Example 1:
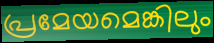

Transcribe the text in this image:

പ്രമേയമെങ്കിലും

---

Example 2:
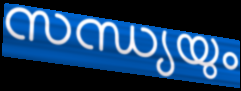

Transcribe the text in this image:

സന്ധ്യയും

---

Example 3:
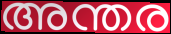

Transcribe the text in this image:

അന്തര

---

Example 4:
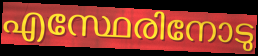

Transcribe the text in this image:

എസ്ഥേരിനോടു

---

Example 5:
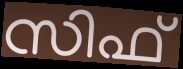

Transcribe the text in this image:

സിഫ്